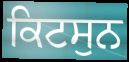
ਕਿਟਸੁਨ